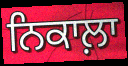
ਨਿਕਾਲ਼ਾ